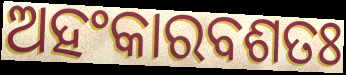
ଅହଂକାରବଶତଃ